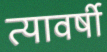
त्यावर्षी